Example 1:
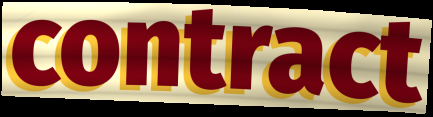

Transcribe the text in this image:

contract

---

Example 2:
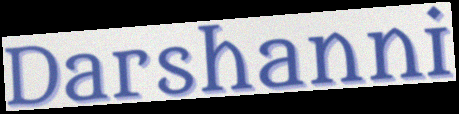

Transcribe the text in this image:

Darshanni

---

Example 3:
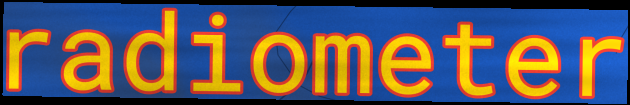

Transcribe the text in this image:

radiometer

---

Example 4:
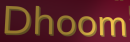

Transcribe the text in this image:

Dhoom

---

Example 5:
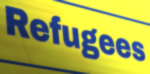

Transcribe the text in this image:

Refugees